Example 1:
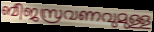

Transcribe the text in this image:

ബീജസ്രവണവുമുള്ള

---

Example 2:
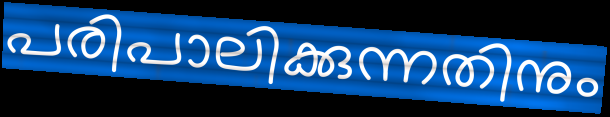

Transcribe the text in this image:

പരിപാലിക്കുന്നതിനും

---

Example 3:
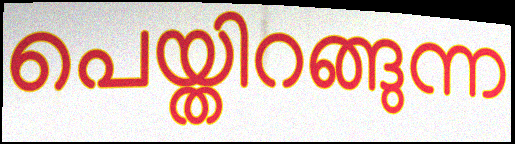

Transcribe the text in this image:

പെയ്തിറങ്ങുന്ന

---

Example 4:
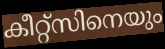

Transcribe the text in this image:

കീറ്റ്സിനെയും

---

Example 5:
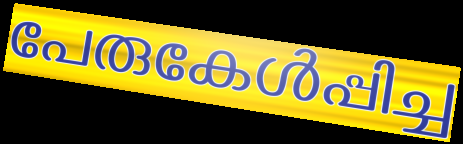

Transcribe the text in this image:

പേരുകേൾപ്പിച്ച